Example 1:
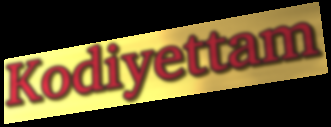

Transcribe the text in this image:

Kodiyettam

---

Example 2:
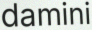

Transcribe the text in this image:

damini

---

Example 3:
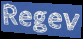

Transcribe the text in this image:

Regev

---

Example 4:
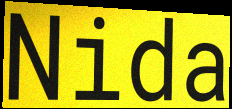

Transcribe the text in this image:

Nida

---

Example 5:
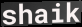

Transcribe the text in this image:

shaik